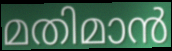
മതിമാൻ